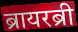
ब्रायरब्री